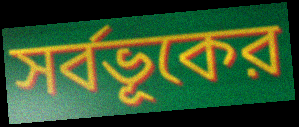
সর্বভূকের